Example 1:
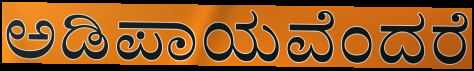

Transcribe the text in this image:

ಅಡಿಪಾಯವೆಂದರೆ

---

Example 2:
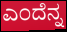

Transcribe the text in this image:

ಎಂದೆನ್ನ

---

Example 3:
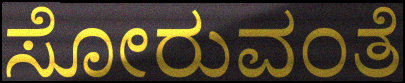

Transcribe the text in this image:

ಸೋರುವಂತೆ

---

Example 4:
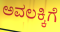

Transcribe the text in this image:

ಅವಲಕ್ಕಿಗೆ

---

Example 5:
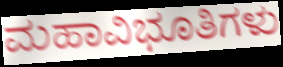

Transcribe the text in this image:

ಮಹಾವಿಭೂತಿಗಳು